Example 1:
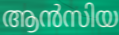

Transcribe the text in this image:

ആൻസിയ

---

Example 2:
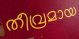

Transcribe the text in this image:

തീവ്രമായ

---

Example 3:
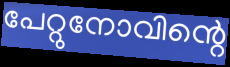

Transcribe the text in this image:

പേറ്റുനോവിന്റെ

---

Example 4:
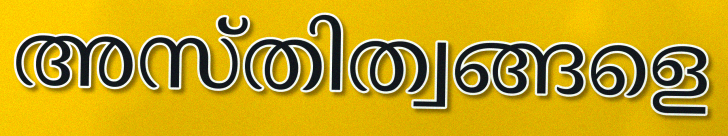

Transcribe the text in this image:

അസ്തിത്വങ്ങളെ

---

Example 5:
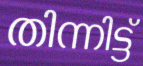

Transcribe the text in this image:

തിന്നിട്ട്